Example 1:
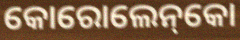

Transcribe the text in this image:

କୋରୋଲେନ୍‌କୋ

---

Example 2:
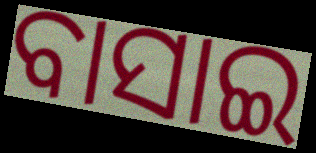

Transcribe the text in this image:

ବାସାଇ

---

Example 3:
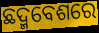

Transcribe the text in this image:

ଛଦ୍ମବେଶରେ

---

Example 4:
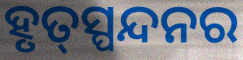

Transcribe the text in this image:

ହୃତ୍‌ସ୍ପନ୍ଦନର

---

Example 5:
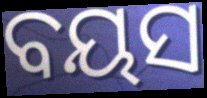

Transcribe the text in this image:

ବୟସ